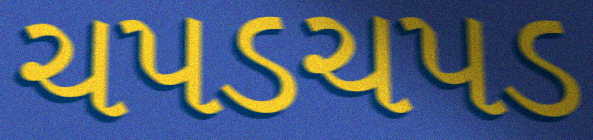
ચપડચપડ